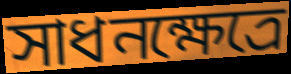
সাধনক্ষেত্রে